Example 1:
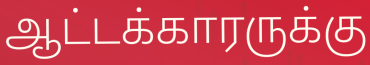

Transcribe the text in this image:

ஆட்டக்காரருக்கு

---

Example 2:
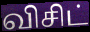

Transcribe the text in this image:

விசிட்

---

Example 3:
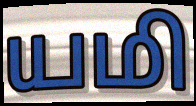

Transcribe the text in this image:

யமி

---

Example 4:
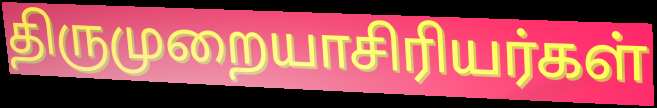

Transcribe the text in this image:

திருமுறையாசிரியர்கள்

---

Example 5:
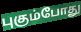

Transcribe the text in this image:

புகும்போது